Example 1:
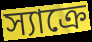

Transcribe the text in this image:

স্যাক্রে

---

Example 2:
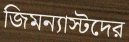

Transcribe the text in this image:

জিমন্যাস্টদের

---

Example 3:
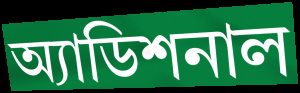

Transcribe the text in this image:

অ্যাডিশনাল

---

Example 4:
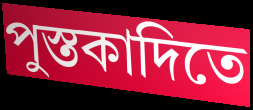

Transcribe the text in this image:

পুস্তকাদিতে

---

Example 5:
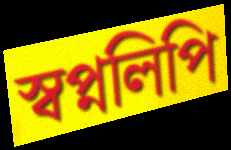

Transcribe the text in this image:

স্বপ্নলিপি